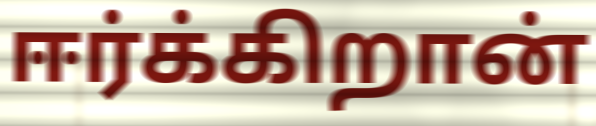
ஈர்க்கிறான்